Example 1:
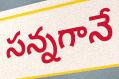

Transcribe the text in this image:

సన్నగానే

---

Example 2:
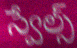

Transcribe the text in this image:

స్వేల్స్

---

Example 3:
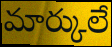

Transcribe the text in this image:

మార్కులే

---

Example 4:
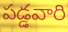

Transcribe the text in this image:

పడ్డవారి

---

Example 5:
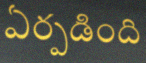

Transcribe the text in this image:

ఏర్పడింది